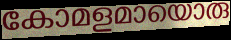
കോമളമായൊരു